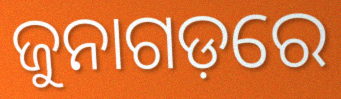
ଜୁନାଗଡ଼ରେ